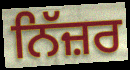
ਨਿੱਜ਼ਰ